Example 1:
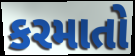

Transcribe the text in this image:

કરમાતો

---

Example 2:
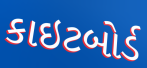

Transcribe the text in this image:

કાઇટબોર્ડ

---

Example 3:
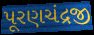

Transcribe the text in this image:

પૂરણચંદ્રજી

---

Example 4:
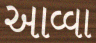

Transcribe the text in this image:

આવ્વા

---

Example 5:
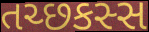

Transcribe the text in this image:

તચ્છકસ્સ